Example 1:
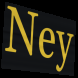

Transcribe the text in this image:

Ney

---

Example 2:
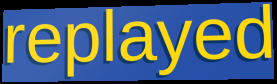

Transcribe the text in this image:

replayed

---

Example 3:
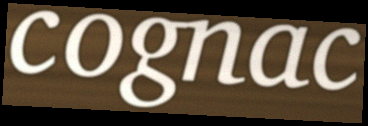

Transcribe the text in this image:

cognac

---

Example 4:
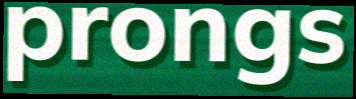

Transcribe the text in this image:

prongs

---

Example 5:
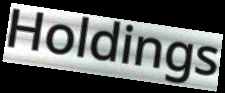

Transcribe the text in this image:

Holdings